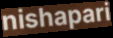
nishapari